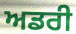
ਅਡਰੀ